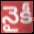
నైకీ